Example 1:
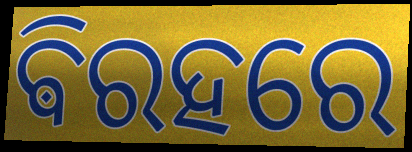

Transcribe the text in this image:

ଵିରହରେ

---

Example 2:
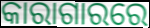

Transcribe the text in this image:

କାରାଗାରରେ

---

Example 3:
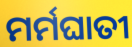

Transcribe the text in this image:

ମର୍ମଘାତୀ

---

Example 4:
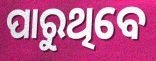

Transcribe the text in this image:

ପାରୁଥିବେ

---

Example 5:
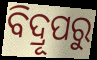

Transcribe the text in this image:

ବିଦ୍ରୂପରୁ